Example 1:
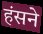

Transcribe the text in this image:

हंसने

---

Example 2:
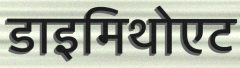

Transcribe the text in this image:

डाइमिथोएट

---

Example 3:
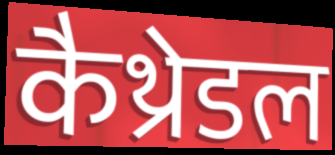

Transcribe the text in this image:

कैथ्रेडल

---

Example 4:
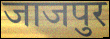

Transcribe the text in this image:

जाजपुर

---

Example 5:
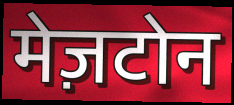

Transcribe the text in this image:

मेज़टोन